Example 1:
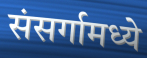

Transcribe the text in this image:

संसर्गामध्ये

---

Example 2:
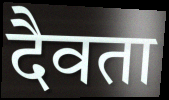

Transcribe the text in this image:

दैवता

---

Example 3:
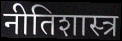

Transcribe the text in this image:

नीतिशास्त्र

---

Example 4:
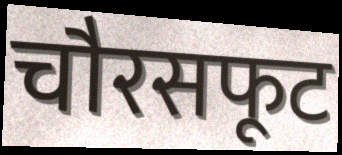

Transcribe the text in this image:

चौरसफूट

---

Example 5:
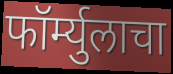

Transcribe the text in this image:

फॉर्म्युलाचा